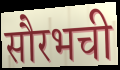
सौरभची